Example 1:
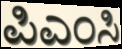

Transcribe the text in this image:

ಪಿಎಂಸಿ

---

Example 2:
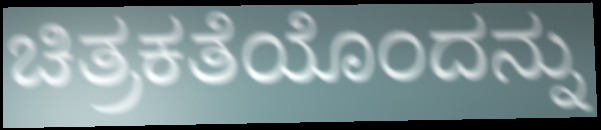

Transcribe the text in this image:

ಚಿತ್ರಕತೆಯೊಂದನ್ನು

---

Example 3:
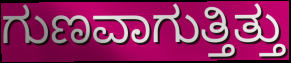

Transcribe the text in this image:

ಗುಣವಾಗುತ್ತಿತ್ತು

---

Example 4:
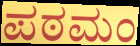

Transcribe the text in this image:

ಪಠಮಂ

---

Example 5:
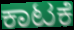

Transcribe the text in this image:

ಕಾಟಕೆ